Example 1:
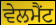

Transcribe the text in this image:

ਵੇਲਮੈਂਟ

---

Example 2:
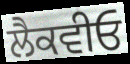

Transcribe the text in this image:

ਲੈਕਵੀਓ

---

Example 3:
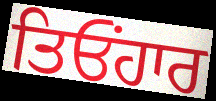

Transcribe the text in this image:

ਤਿਓਂਹਾਰ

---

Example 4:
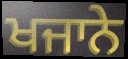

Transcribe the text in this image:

ਖਜਾਨੇ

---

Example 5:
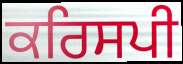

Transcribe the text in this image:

ਕਰਿਸਪੀ